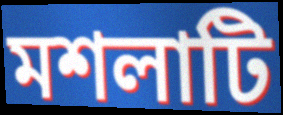
মশলাটি